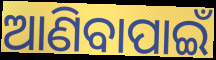
ଆଣିବାପାଇଁ